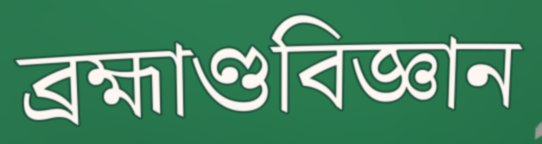
ব্ৰহ্মাণ্ডবিজ্ঞান